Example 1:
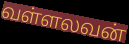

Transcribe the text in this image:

வள்ளலவன்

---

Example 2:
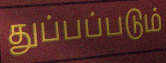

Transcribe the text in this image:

துப்பப்படும்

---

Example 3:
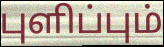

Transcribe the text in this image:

புளிப்பும்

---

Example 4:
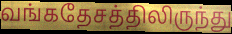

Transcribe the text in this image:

வங்கதேசத்திலிருந்து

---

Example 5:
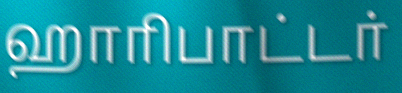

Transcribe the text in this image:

ஹாரிபாட்டர்